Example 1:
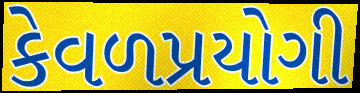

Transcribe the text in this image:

કેવળપ્રયોગી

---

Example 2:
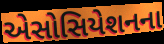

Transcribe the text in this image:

એસોસિયેશનના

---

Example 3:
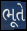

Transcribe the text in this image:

ભૂતે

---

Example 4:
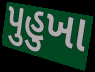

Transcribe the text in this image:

પુહુખા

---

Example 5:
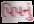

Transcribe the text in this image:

પિપનું